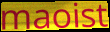
maoist